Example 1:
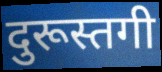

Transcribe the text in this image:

दुरूस्तगी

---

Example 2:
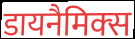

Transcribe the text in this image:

डायनैमिक्‍स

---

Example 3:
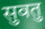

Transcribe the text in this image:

सुवतु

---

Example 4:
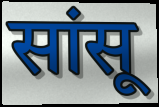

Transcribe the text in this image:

सांसू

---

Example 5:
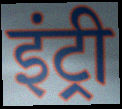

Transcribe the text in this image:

इंट्री